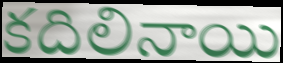
కదిలినాయి